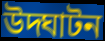
উদ্ঘাটন